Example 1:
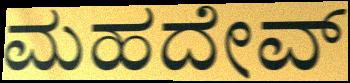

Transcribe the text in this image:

ಮಹದೇವ್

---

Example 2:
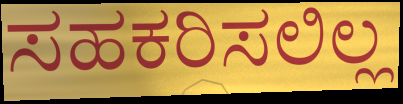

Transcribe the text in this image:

ಸಹಕರಿಸಲಿಲ್ಲ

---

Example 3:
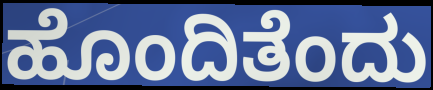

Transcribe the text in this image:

ಹೊಂದಿತೆಂದು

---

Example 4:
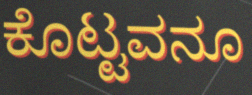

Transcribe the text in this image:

ಕೊಟ್ಟವನೂ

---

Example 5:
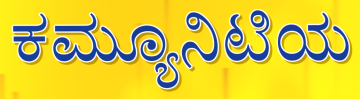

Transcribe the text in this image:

ಕಮ್ಯೂನಿಟಿಯ